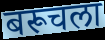
बरूचला